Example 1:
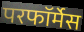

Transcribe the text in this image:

परफॉर्मेस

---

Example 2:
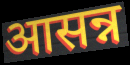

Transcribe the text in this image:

आसन्न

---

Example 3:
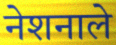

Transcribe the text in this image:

नेशनाले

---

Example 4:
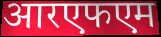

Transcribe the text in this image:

आरएफएम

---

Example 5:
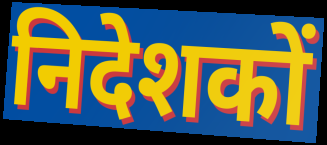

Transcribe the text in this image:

निदेशकों